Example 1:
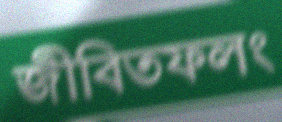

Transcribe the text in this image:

জীবিতফলং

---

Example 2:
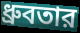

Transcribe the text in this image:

ধ্রুবতার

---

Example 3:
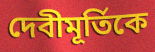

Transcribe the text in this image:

দেবীমূর্তিকে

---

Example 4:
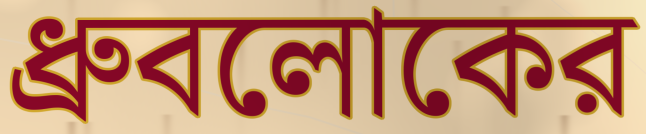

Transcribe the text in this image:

ধ্রুবলোকের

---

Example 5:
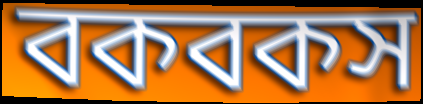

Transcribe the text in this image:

বকবকস